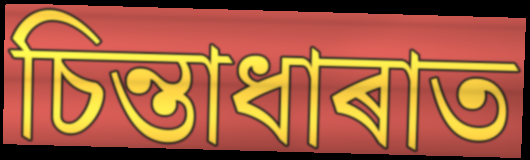
চিন্তাধাৰাত